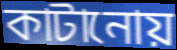
কাটানোয়